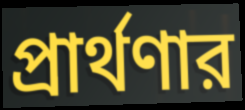
প্রার্থণার